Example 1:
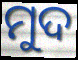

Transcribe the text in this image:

ମୁଦ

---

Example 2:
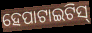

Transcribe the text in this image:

ହେପାଟାଇଟିସ୍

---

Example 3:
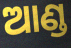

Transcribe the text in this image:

ଆଣ୍ଡ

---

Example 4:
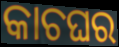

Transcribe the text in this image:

କାଚଘର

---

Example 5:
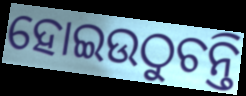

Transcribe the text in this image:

ହୋଇଉଠୁଚନ୍ତି